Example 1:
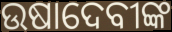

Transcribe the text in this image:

ଉଷାଦେବୀଙ୍କ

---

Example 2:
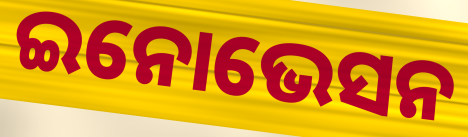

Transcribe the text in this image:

ଇନୋଭେସନ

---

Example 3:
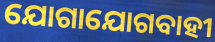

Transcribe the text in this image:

ଯୋଗାଯୋଗବାହୀ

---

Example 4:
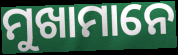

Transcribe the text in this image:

ମୁଖାମାନେ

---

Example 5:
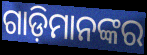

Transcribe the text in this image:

ଗାଡ଼ିମାନଙ୍କର